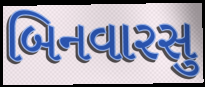
બિનવારસુ